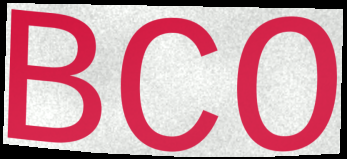
BCO